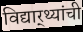
विद्यार्थ्यांची